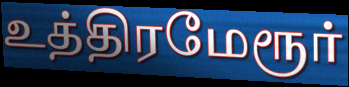
உத்திரமேரூர்